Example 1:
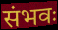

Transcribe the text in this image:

संभवः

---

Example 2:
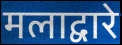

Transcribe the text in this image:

मलाद्वारे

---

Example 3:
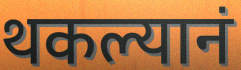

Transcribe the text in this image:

थकल्यानं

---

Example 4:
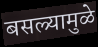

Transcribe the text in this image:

बसल्यामुळे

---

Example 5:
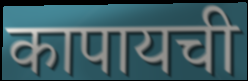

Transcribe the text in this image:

कापायची